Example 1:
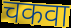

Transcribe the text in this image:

चकवा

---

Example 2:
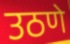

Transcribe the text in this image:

उठणे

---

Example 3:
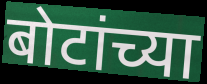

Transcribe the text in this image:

बोटांच्या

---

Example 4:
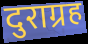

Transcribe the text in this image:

दुराग्रह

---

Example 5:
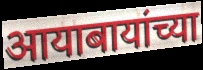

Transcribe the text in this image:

आयाबायांच्या